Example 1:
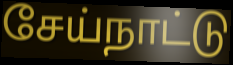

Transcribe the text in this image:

சேய்நாட்டு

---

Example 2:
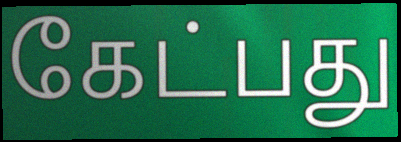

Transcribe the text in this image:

கேட்பது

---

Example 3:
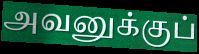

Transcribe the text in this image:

அவனுக்குப்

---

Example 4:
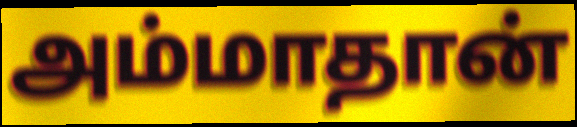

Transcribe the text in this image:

அம்மாதான்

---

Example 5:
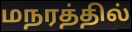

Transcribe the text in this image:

மநரத்தில்